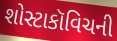
શોસ્ટાકૉવિચની